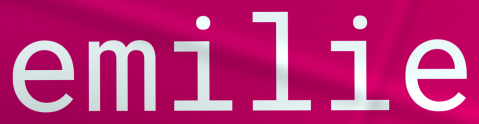
emilie